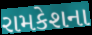
રામકેશના